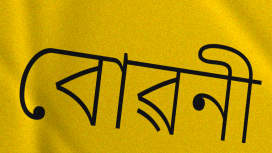
বোৱনী